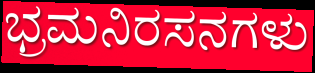
ಭ್ರಮನಿರಸನಗಳು